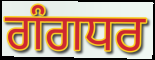
ਗੰਗਧਰ